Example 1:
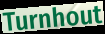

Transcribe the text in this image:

Turnhout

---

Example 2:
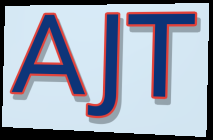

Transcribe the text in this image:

AJT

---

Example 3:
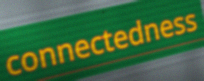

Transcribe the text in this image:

connectedness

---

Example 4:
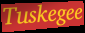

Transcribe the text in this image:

Tuskegee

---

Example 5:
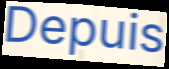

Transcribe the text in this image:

Depuis